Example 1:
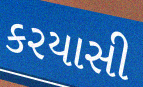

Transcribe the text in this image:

કરયાસી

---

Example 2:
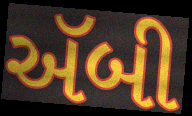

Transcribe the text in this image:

ઍબી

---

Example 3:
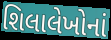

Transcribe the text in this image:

શિલાલેખોનાં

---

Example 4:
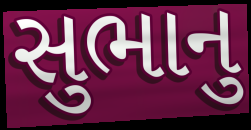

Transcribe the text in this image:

સુભાનુ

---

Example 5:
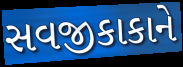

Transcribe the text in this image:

સવજીકાકાને